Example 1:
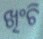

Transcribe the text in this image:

ଖିଂଚି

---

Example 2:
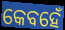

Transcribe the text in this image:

କେବହେଁ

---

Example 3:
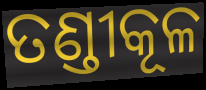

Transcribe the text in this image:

ତଣ୍ଡୀକୂଳ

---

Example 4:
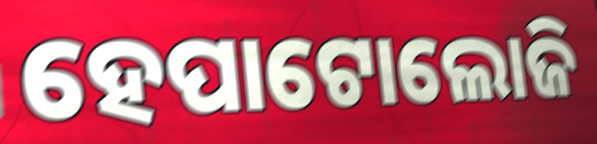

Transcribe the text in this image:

ହେପାଟୋଲୋଜି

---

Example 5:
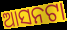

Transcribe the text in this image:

ଆସନଟା